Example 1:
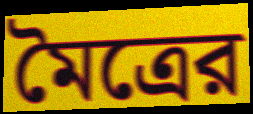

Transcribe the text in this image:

মৈত্রের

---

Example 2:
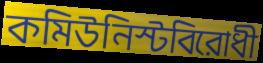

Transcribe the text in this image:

কমিউনিস্টবিরোধী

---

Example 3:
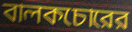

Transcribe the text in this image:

বালকচোরের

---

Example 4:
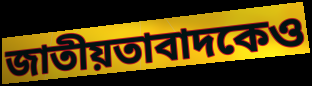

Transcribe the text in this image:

জাতীয়তাবাদকেও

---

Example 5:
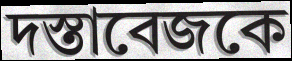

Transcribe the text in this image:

দস্তাবেজকে